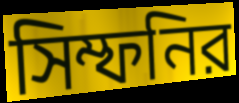
সিম্ফনির